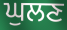
ਘੁਲਣ